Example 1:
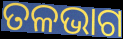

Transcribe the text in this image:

ତଳଭାଗ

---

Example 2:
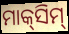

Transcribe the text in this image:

ମାକ୍‍ସିମ୍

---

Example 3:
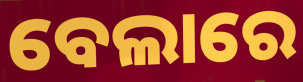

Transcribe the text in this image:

ବେଲାରେ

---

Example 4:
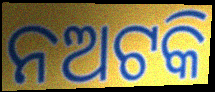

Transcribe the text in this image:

ନଅଟକି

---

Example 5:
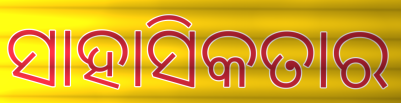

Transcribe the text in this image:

ସାହାସିକତାର